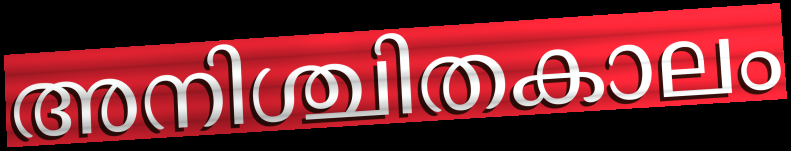
അനിശ്ചിതകാലം